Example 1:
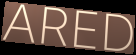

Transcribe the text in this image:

ARED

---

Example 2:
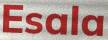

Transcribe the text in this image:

Esala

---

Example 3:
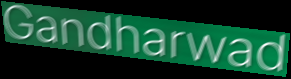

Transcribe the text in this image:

Gandharwad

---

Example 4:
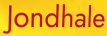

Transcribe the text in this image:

Jondhale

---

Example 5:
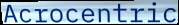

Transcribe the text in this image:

Acrocentric